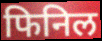
फिनिल